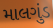
માલગુંડ